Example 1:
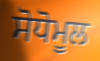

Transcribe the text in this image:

ਸੋਧੋਮੂਲ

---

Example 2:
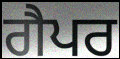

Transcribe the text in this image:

ਗੈਪਰ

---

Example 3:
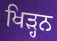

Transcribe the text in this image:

ਖਿੜ੍ਹਨ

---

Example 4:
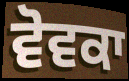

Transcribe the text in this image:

ਵੋਵਕਾ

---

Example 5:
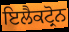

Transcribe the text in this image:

ਇਲੈਕਟ੍ਰੋਨ